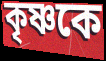
কৃষ্ণকে